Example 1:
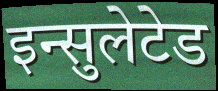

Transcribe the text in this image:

इन्सुलेटेड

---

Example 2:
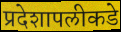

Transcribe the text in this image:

प्रदेशापलीकडे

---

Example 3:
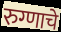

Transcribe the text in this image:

रुग्‍णाचे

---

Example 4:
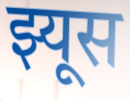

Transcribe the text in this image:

झ्यूस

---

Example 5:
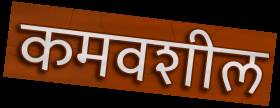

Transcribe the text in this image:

कमवशील